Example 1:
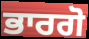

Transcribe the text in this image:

ਭਾਰਗੋ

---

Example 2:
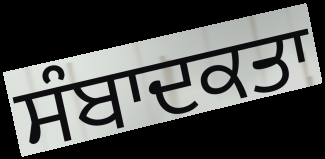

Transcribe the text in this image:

ਸੰਬਾਦਕਤਾ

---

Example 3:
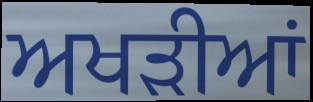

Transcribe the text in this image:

ਅਖੜੀਆਂ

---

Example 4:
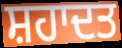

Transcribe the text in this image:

ਸ਼ਹਾਦਤ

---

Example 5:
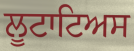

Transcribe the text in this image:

ਲੂਟਾਟਿਅਸ